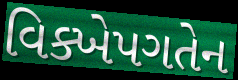
વિક્ખેપગતેન